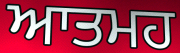
ਆਤਮਹ